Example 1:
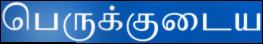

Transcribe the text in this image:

பெருக்குடைய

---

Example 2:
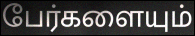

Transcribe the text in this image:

பேர்களையும்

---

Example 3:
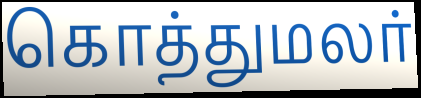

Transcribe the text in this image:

கொத்துமலர்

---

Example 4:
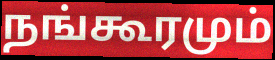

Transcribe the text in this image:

நங்கூரமும்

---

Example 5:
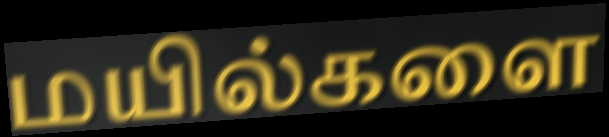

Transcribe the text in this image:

மயில்களை